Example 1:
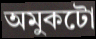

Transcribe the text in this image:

অমুকটো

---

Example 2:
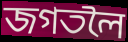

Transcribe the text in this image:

জগতলৈ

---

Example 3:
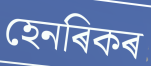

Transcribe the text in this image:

হেনৰিকৰ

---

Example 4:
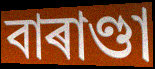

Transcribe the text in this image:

বাৰাণ্ডা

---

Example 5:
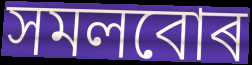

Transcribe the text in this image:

সমলবোৰ